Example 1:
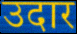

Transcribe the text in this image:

उदार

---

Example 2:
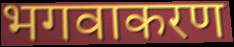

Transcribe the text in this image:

भगवाकरण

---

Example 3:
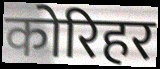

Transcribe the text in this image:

कोरिहर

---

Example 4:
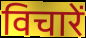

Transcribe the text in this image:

विचारें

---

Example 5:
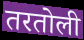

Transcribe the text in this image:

तरतोली